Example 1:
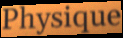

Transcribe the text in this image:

Physique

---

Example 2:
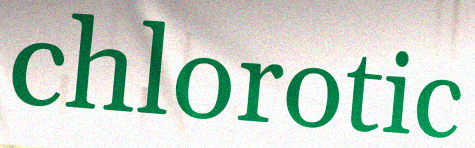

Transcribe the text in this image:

chlorotic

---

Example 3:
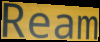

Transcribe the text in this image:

Ream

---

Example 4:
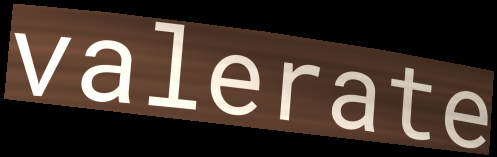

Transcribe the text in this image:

valerate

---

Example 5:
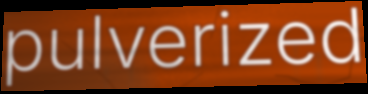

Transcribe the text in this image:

pulverized